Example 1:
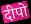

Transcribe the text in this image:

दीपो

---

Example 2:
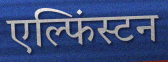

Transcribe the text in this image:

एल्फिंस्टन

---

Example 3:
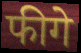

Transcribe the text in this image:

फीगे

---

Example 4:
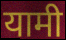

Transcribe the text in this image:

यामी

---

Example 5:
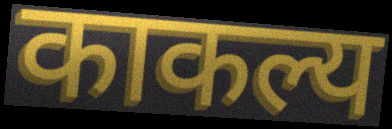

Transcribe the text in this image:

काकल्य